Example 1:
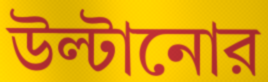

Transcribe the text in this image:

উল্টানোর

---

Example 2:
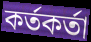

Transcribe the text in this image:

কর্তকর্তা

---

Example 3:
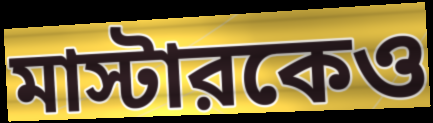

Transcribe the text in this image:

মাস্টারকেও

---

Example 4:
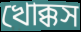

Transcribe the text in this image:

খোক্কস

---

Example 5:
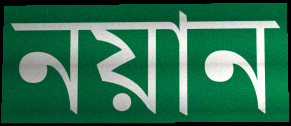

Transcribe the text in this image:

নয়ান